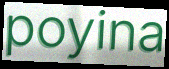
poyina